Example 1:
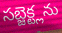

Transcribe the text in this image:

సబ్జెక్ట్లను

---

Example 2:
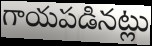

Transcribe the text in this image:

గాయపడినట్లు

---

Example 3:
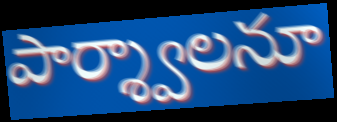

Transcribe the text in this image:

పార్శ్వాలనూ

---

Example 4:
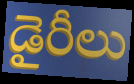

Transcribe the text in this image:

డైరీలు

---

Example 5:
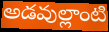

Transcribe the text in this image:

అడవుల్లాంటి